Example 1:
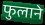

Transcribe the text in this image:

फुलाने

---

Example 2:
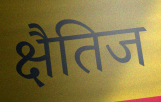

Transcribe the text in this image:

क्षैतिज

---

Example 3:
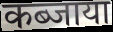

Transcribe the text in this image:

कब्जाया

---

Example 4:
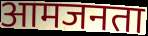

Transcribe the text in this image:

आमजनता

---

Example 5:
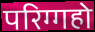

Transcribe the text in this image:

परिग्गहो